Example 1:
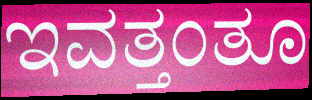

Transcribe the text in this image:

ಇವತ್ತಂತೂ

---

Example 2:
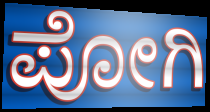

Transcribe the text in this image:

ಪೋಗಿ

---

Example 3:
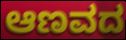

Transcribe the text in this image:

ಆಣವದ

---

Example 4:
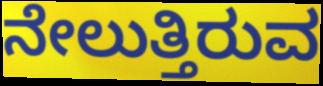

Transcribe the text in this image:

ನೇಲುತ್ತಿರುವ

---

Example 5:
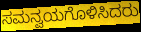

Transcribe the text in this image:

ಸಮನ್ವಯಗೊಳಿಸಿದರು